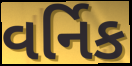
વર્નિક